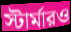
স্টার্মারও